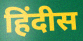
हिंदीस